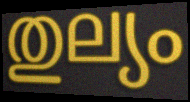
തുല്യം